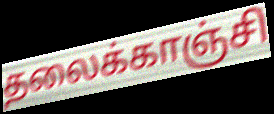
தலைக்காஞ்சி